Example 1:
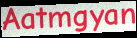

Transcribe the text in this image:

Aatmgyan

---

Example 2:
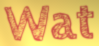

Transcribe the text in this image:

Wat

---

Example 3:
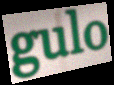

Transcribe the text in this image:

gulo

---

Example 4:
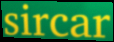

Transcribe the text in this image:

sircar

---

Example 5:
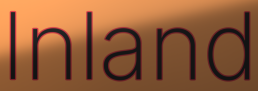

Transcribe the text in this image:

Inland